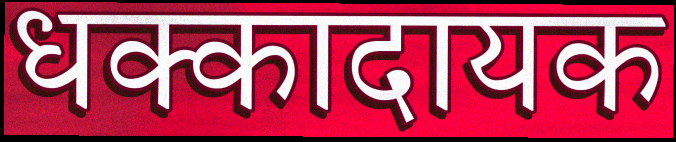
धक्‍कादायक